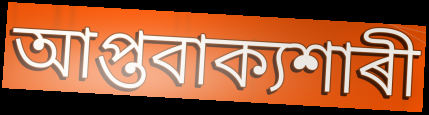
আপ্তবাক্যশাৰী